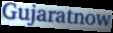
Gujaratnow